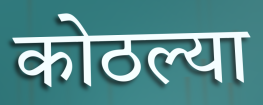
कोठल्या